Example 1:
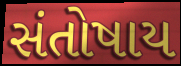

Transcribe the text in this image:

સંતોષાય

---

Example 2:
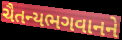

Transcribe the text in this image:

ચૈતન્યભગવાનને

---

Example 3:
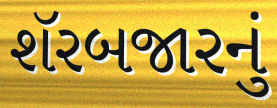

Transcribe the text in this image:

શૅરબજારનું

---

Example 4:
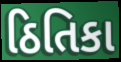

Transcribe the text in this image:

ઠિતિકા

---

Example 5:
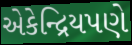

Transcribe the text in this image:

એકેન્દ્રિયપણે